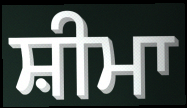
ਸ਼ੀਮਾ